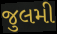
જુલમી